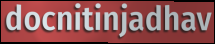
docnitinjadhav